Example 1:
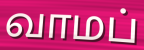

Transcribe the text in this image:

வாமப்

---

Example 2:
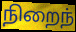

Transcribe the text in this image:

நிறைந்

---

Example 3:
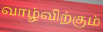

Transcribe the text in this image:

வாழ்விற்கும்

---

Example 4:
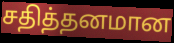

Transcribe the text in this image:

சதித்தனமான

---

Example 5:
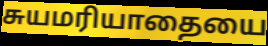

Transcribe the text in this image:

சுயமரியாதையை